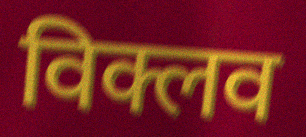
विक्लव